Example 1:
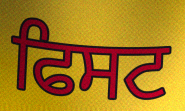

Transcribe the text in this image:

ਫਿਸਟ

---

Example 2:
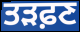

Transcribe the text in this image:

ਤੜਫ਼ਣ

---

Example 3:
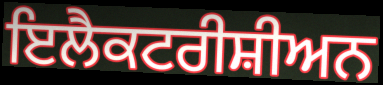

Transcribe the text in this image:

ਇਲੈਕਟਰੀਸ਼ੀਅਨ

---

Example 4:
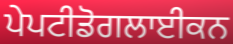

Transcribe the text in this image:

ਪੇਪਟੀਡੋਗਲਾਈਕਨ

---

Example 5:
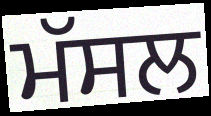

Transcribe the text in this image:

ਮੱਸਲ